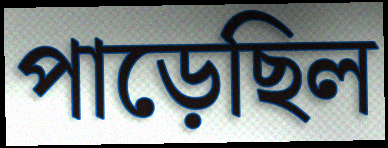
পাড়েছিল